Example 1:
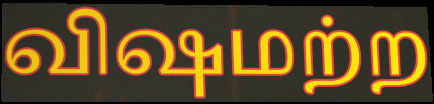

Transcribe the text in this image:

விஷமற்ற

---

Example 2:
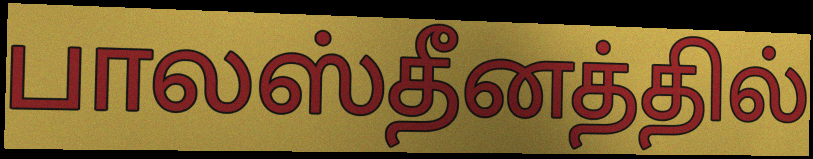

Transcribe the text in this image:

பாலஸ்தீனத்தில்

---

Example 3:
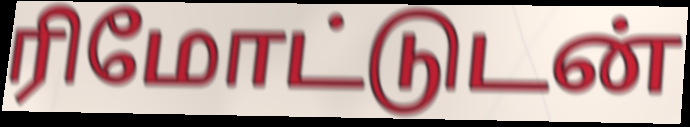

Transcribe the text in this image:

ரிமோட்டுடன்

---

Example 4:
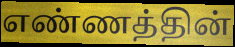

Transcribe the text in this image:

எண்ணத்தின்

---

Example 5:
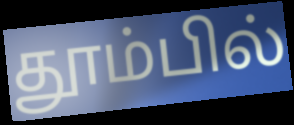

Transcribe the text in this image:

தூம்பில்